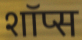
शॉप्स